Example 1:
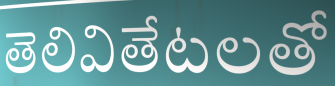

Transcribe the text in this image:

తెలివితేటలతో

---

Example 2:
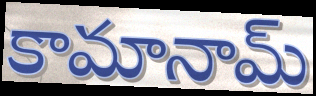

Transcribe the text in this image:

కామానామ్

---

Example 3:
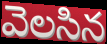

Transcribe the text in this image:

వెలసిన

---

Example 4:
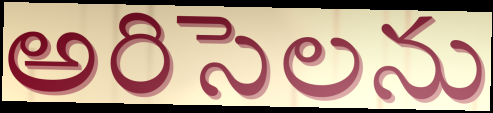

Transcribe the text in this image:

అరిసెలను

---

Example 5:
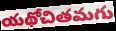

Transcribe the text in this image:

యథోచితమగు